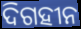
ଦିଗହୀନ